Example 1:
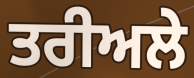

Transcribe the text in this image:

ਤਰੀਅਲੇ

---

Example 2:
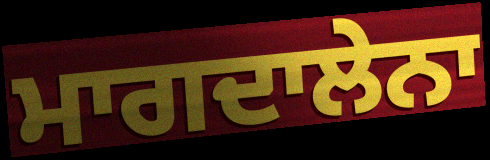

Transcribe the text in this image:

ਮਾਗਦਾਲੇਨਾ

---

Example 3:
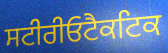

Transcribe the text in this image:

ਸਟੀਰੀਓਟੈਕਟਿਕ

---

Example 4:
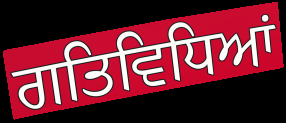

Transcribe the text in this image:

ਗਤਿਵਿਧਿਆਂ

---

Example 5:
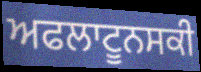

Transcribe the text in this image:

ਅਫਲਾਟੂਨਸਕੀ